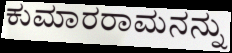
ಕುಮಾರರಾಮನನ್ನು